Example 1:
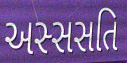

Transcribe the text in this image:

અસ્સસતિ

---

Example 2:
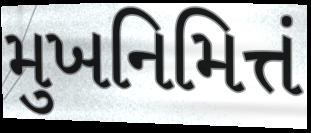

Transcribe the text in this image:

મુખનિમિત્તં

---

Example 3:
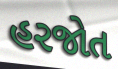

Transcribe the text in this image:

હરજોત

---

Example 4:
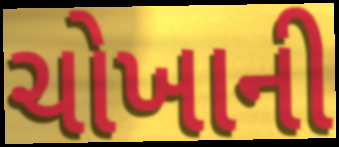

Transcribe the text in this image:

ચોખાની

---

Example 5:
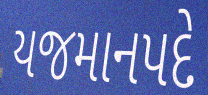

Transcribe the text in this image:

યજમાનપદે